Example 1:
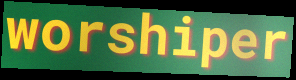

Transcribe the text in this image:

worshiper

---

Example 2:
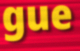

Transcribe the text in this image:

gue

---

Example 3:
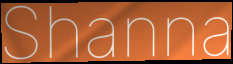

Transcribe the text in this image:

Shanna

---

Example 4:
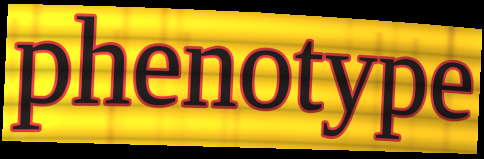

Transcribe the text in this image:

phenotype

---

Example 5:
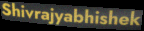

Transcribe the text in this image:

Shivrajyabhishek